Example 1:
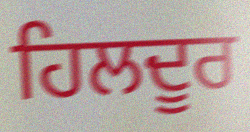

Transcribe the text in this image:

ਹਿਲਦੂਰ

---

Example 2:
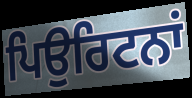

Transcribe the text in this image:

ਪਿਉਰਿਟਨਾਂ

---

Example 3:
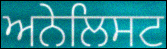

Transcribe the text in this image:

ਅਨੇਲਿਸਟ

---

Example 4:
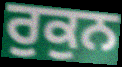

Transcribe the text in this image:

ਰੁਕੁਨ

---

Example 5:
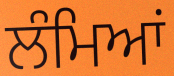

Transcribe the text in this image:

ਲੰਮਿਆਂ